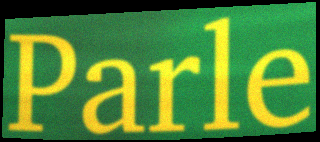
Parle